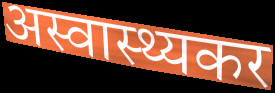
अस्वास्थ्यकर